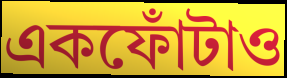
একফোঁটাও